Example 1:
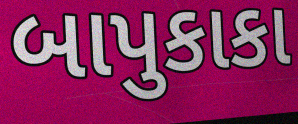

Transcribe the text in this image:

બાપુકાકા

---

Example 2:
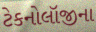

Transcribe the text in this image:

ટેકનોલૉજીના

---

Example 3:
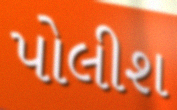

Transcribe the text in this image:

પોલીશ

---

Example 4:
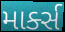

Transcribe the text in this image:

માર્ક્સ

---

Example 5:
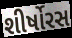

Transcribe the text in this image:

શીર્ષોરસ